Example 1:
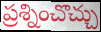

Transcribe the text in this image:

ప్రశ్నించొచ్చు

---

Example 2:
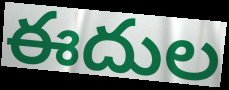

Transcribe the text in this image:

ఈదుల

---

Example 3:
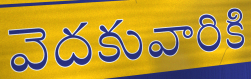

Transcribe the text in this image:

వెదకువారికి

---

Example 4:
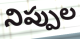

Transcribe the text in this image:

నిప్పుల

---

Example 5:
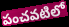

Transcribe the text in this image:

పంచవటిలో